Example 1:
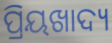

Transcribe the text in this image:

ପ୍ରିୟଖାଦ୍ୟ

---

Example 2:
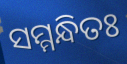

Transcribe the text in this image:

ସମ୍ମନ୍ଧିତଃ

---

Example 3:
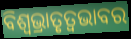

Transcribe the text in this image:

ବିଶ୍ଵଭ୍ରାତୃତ୍ୱଭାବର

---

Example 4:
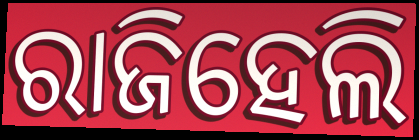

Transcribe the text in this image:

ରାଜିହେଲି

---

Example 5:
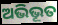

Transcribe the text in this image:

ଅଭିଭୂତ